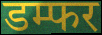
डम्फर